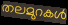
തലമുറകൾ